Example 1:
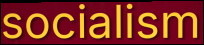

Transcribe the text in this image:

socialism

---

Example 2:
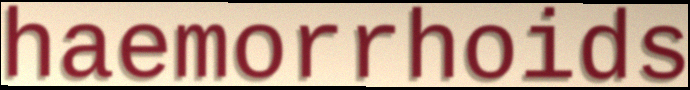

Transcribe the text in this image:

haemorrhoids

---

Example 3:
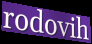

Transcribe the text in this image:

rodovih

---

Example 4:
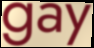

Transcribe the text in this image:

gay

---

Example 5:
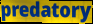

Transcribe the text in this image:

predatory